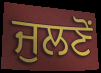
ਜੁਲਣੋਂ